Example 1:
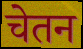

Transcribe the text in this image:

चेतन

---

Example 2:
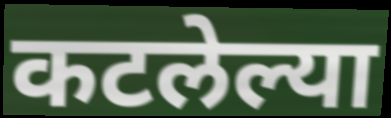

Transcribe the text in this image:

कटलेल्या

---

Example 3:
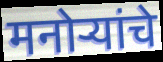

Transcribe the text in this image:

मनोऱ्यांचे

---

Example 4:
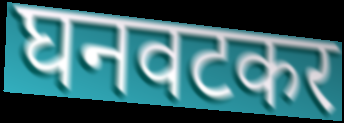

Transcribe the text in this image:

घनवटकर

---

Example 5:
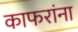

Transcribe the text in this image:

काफरांना